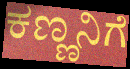
ಕಣ್ಣನಿಗೆ